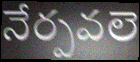
నేర్పవలె